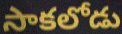
సాకలోడు